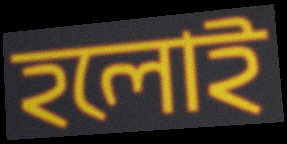
হলোই